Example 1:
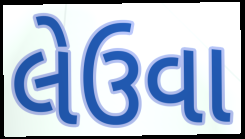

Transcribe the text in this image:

લેઉવા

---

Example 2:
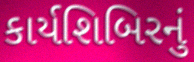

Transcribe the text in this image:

કાર્યશિબિરનું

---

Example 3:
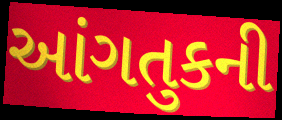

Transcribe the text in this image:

આંગતુકની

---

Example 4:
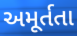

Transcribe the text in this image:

અમૂર્તતા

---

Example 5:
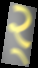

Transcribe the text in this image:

ર્